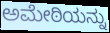
ಅಮೇಠಿಯನ್ನು